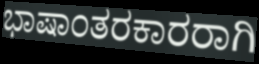
ಭಾಷಾಂತರಕಾರರಾಗಿ